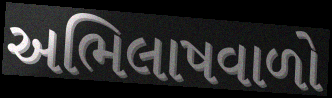
અભિલાષવાળો